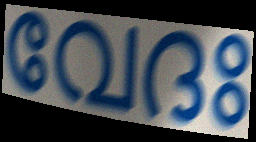
വേദഃ